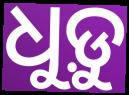
ଧୁଡ଼ୁ